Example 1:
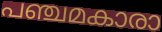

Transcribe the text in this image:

പഞ്ചമകാരാ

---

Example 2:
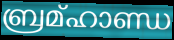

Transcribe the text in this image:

ബ്രമ്ഹാണ്ഡ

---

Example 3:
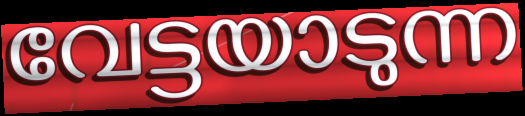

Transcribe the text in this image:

വേട്ടയാടുന്ന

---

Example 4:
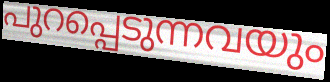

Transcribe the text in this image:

പുറപ്പെടുന്നവയും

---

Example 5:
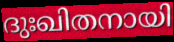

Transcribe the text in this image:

ദുഃഖിതനായി